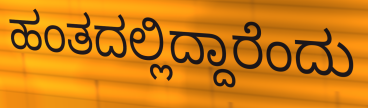
ಹಂತದಲ್ಲಿದ್ದಾರೆಂದು